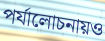
পর্যালোচনায়ও